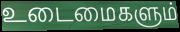
உடைமைகளும்